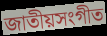
জাতীয়সংগীত